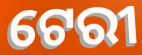
ଟେରୀ